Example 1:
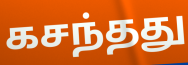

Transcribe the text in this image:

கசந்தது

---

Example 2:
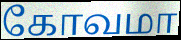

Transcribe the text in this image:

கோவமா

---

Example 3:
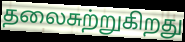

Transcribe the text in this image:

தலைசுற்றுகிறது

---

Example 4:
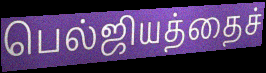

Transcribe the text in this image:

பெல்ஜியத்தைச்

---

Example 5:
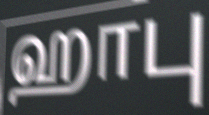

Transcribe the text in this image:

ஹாபு